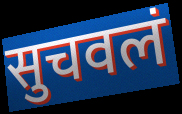
सुचवलं